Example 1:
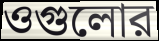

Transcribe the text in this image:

ওগুলোর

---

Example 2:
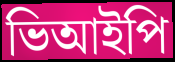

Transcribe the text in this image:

ভিআইপি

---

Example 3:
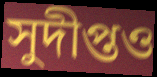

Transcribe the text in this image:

সুদীপ্তও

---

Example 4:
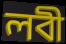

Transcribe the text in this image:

লবী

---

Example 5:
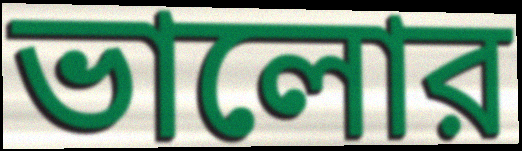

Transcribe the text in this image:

ভালোর